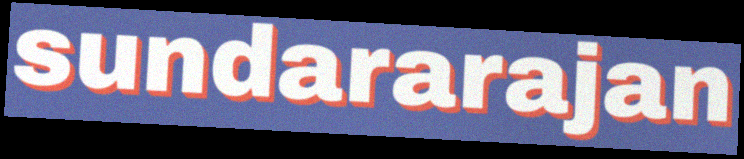
sundararajan